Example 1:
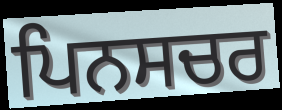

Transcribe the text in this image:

ਪਿਨਸਚਰ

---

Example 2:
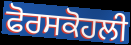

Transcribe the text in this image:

ਫੋਰਸਕੋਹਲੀ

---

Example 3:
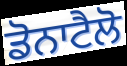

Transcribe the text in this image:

ਡੋਨਾਟੈਲੋ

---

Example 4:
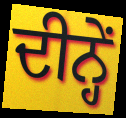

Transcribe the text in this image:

ਦੀਨ੍ਹੇਂ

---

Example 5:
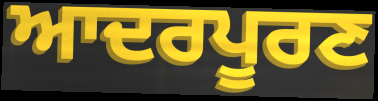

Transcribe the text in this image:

ਆਦਰਪੂਰਣ